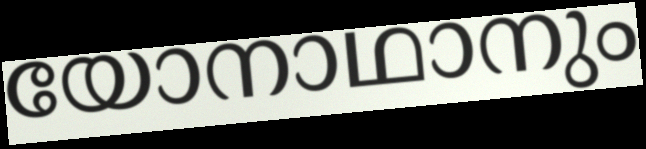
യോനാഥാനും